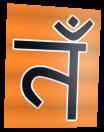
নঁ